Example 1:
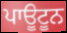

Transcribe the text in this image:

ਪਾਊਟੂਨ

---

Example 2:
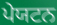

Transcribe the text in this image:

ਪੇਯਟਨ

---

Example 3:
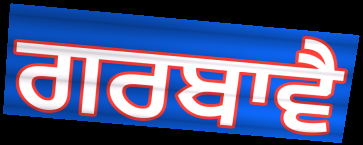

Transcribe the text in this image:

ਗਰਬਾਵੈ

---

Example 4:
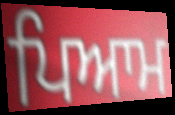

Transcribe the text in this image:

ਪਿਆਮ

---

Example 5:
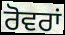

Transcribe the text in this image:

ਰੋਵਰਾਂ